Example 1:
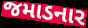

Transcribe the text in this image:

જમાડનાર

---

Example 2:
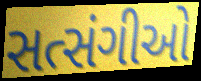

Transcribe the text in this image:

સત્સંગીઓ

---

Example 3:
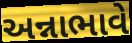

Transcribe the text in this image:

અન્નાભાવે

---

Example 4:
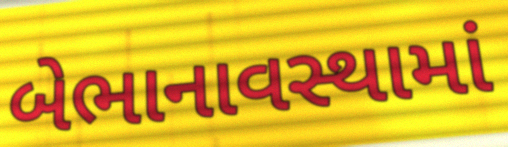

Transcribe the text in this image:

બેભાનાવસ્થામાં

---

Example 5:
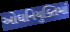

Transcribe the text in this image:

ઓઘનિયુક્તિમાં